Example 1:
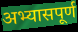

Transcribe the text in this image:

अभ्यासपूर्ण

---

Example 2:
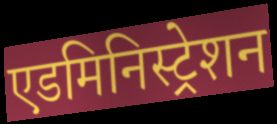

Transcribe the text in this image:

एडमिनिस्ट्रेशन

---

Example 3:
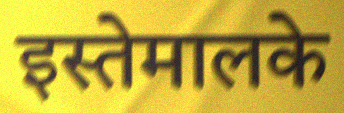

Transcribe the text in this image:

इस्तेमालके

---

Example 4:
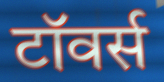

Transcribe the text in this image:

टॉवर्स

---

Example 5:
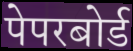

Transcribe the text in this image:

पेपरबोर्ड